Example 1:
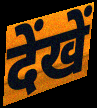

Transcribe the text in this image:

देंखें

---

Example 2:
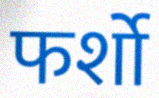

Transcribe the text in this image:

फर्शो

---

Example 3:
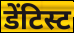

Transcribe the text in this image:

डेंटिस्ट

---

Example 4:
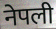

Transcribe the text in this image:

नेपली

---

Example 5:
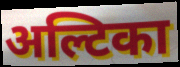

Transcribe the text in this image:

अल्टिका